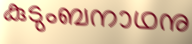
കുടുംബനാഥനു